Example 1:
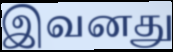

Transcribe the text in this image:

இவனது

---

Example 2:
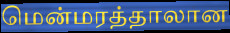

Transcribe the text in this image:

மென்மரத்தாலான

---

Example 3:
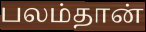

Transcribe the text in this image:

பலம்தான்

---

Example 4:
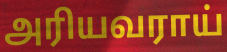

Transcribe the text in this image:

அரியவராய்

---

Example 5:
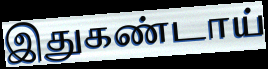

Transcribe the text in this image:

இதுகண்டாய்